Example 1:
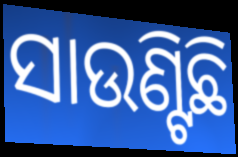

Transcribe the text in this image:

ସାଉଣ୍ଟିଛି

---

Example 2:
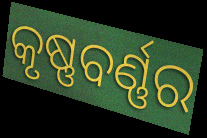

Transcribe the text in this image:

କୃଷ୍ଣବର୍ଣ୍ଣର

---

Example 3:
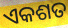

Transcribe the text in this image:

ଏକଶତ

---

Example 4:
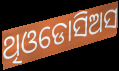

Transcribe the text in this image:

ଥିଓଡୋସିଅସ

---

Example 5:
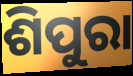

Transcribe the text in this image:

ଶିପୁରା